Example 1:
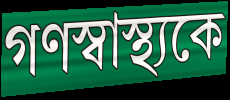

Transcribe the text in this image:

গণস্বাস্থ্যকে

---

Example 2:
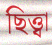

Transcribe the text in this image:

ছিত্ত্বা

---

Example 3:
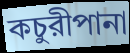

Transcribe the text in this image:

কচুরীপানা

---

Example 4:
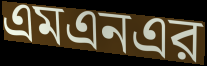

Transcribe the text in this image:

এমএনএর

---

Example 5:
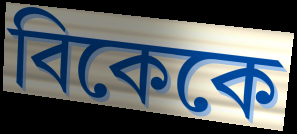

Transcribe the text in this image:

বিকেকে